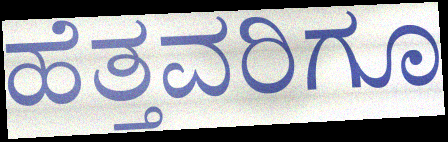
ಹೆತ್ತವರಿಗೂ